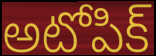
అటోపిక్